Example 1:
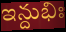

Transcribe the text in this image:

ఇన్దుభిః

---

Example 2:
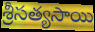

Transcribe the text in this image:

శ్రీసత్యసాయి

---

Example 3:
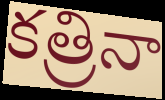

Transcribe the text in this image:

కత్రినా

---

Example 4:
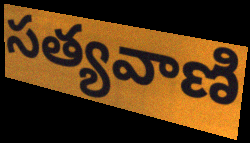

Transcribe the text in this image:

సత్యవాణి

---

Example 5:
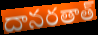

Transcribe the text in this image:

దానరతాత్